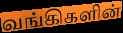
வங்கிகளின்